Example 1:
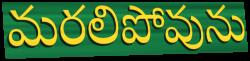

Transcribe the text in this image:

మరలిపోవును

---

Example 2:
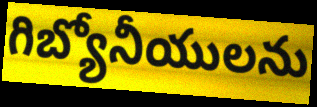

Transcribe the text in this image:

గిబ్యోనీయులను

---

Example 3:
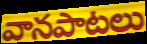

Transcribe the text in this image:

వానపాటలు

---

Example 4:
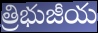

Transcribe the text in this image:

త్రిభుజీయ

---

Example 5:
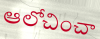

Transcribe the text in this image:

ఆలోచించా